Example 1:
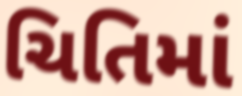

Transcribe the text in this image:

ચિતિમાં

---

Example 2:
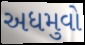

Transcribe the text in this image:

અધમુવો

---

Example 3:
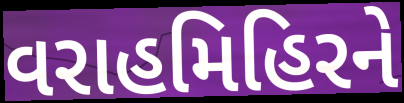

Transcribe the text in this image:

વરાહમિહિરને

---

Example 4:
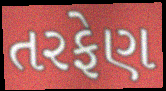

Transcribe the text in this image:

તરફેણ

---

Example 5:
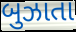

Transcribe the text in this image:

બુઝાતા